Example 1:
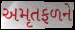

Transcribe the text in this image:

અમૃતફળને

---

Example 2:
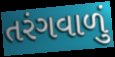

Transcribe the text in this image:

તરંગવાળું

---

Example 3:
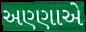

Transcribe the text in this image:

અણ્ણાએ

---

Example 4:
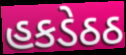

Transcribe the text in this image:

હકડેઠઠ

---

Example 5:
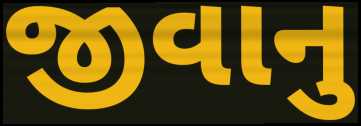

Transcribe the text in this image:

જીવાનુ